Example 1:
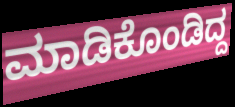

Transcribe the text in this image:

ಮಾಡಿಕೊಂಡಿದ್ದ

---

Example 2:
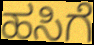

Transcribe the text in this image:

ಹಸಿಗೆ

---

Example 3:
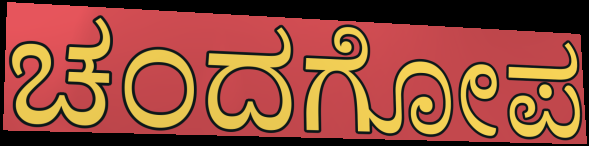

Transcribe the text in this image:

ಚಂದಗೋಪ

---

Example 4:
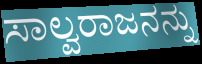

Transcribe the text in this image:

ಸಾಲ್ವರಾಜನನ್ನು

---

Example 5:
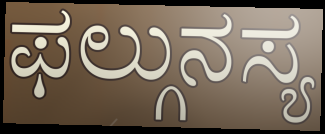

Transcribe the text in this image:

ಫಲ್ಗುನಸ್ಯ